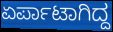
ಏರ್ಪಾಟಾಗಿದ್ದ